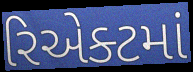
રિએક્ટમાં